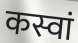
कस्‍वां